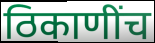
ठिकाणींच